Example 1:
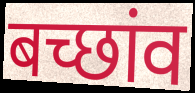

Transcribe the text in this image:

बच्छांव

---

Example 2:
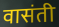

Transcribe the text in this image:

वासंती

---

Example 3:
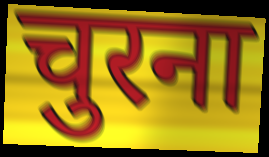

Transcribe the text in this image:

चुरना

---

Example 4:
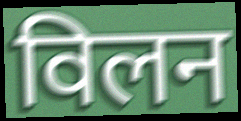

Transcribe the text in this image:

विलन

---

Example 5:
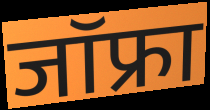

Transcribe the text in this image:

जॉफ्रा